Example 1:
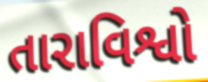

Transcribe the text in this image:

તારાવિશ્વો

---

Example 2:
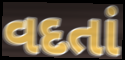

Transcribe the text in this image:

વદતાં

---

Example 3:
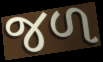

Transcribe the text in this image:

જળ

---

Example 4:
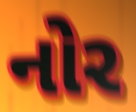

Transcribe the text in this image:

નોર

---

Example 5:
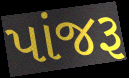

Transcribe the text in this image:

પાંજરૂ